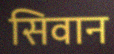
सिवान